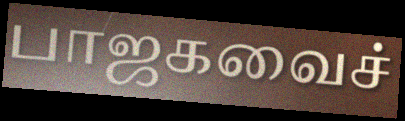
பாஜகவைச்